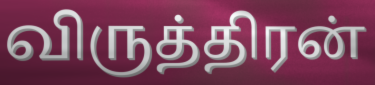
விருத்திரன்